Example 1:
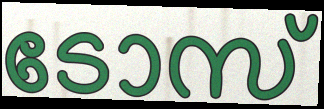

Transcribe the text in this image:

ടോസ്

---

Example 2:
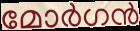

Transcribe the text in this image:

മോർഗൻ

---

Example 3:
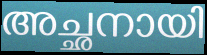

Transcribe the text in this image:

അച്ഛനായി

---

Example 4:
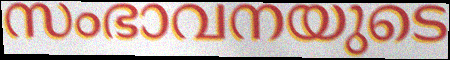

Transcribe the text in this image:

സംഭാവനയുടെ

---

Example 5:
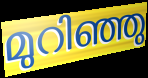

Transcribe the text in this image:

മുറിഞ്ഞു